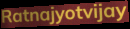
Ratnajyotvijay